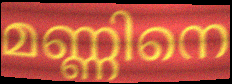
മണ്ണിനെ